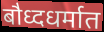
बौध्दधर्मात